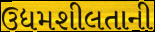
ઉદ્યમશીલતાની